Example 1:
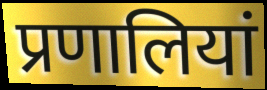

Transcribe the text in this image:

प्रणालियां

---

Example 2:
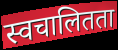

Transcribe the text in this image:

स्वचालितता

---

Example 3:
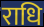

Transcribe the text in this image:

राधि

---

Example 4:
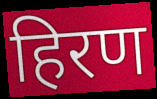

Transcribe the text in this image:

हिरण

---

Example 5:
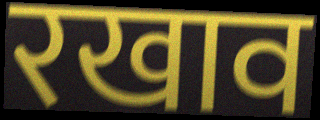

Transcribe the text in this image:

रखाव